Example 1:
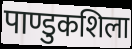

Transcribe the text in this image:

पाण्डुकशिला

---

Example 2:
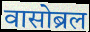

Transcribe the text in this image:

वासोब्रल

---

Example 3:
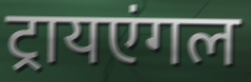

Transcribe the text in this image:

ट्रायएंगल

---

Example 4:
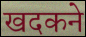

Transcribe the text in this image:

खदकने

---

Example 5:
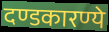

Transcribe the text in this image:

दण्डकारण्ये